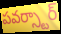
పవర్స్టార్